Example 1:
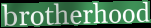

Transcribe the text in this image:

brotherhood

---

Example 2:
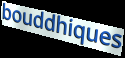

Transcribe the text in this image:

bouddhiques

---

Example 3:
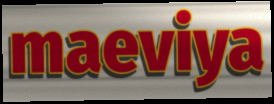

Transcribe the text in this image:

maeviya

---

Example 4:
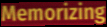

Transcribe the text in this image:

Memorizing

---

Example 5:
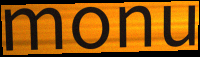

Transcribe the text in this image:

monu